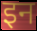
इन